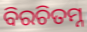
ବିରଚିତମ୍ନ